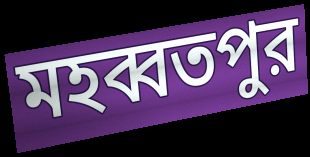
মহব্বতপুর